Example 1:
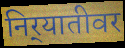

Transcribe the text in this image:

निर्यातीवर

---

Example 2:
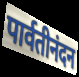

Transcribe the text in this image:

पार्वतीनंदन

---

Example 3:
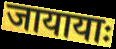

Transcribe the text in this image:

जायायाः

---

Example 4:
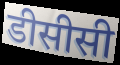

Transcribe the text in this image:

डीसीसी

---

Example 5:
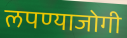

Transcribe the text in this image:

लपण्याजोगी